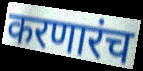
करणारंच